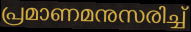
പ്രമാണമനുസരിച്ച്